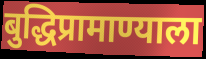
बुद्धिप्रामाण्याला